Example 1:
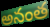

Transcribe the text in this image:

అనంత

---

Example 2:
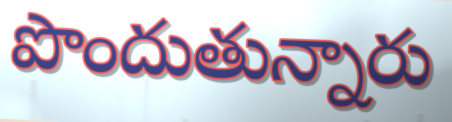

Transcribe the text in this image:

పొందుతున్నారు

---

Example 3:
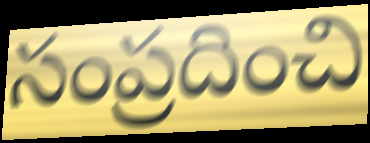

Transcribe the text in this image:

సంప్రదించి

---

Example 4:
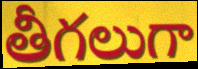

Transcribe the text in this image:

తీగలుగా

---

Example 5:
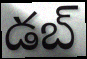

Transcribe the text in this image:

డబ్